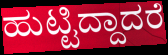
ಹುಟ್ಟಿದ್ದಾದರೆ